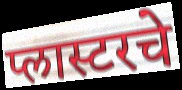
प्लास्टरचे